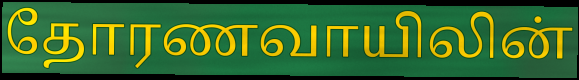
தோரணவாயிலின்